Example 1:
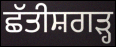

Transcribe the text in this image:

ਛੱਤੀਸ਼ਗੜ੍ਹ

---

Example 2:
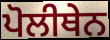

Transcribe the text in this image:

ਪੋਲੀਥੇਨ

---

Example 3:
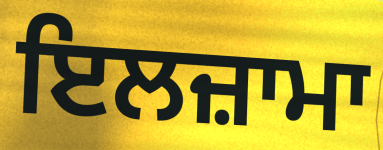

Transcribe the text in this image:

ਇਲਜ਼ਾਮਾ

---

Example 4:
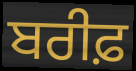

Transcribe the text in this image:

ਬਰੀਫ਼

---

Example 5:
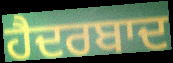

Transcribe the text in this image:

ਹੈਦਰਬਾਦ